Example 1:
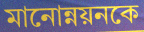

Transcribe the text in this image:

মানোন্নয়নকে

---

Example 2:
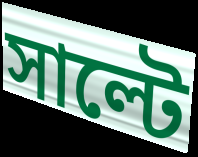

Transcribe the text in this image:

সাল্টে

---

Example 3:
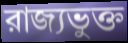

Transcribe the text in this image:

রাজ্যভুক্ত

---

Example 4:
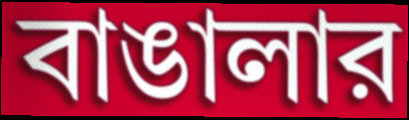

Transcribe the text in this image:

বাঙালার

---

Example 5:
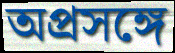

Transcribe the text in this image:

অপ্রসঙ্গে